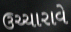
ઉચ્ચારાવે